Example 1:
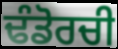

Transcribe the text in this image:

ਢੰਡੋਰਚੀ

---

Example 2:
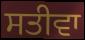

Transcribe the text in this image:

ਸਤੀਵਾ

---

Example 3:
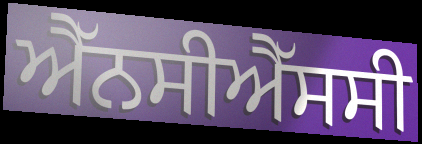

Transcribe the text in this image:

ਐੱਨਸੀਐੱਸਸੀ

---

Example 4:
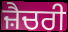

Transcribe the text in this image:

ਜ਼ੈਚਰੀ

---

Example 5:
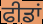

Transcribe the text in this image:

ਫੀਡਾਂ